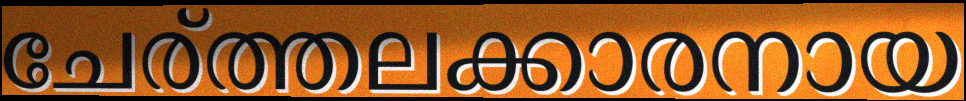
ചേര്ത്തലക്കാരനായ